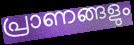
പ്രാണങ്ങളും